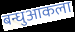
बन्धुआकला